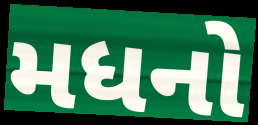
મધનો